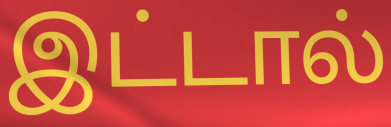
இட்டால்